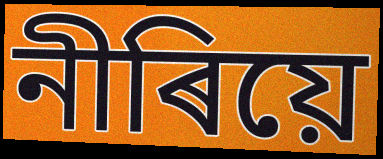
নীৰিয়ে